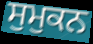
ਸੁਮੁਕਨ